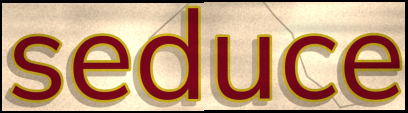
seduce